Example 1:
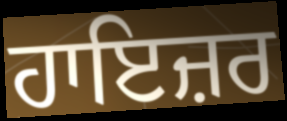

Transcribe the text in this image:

ਹਾਇਜ਼ਰ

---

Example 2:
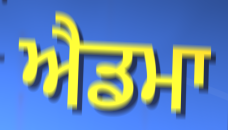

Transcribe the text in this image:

ਐਡਮਾ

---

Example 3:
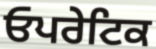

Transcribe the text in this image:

ਓਪਰੇਟਿਕ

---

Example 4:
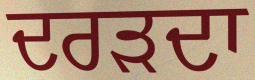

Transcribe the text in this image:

ਦਰੜਦਾ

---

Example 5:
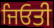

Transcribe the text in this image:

ਜਿਓਤੀ